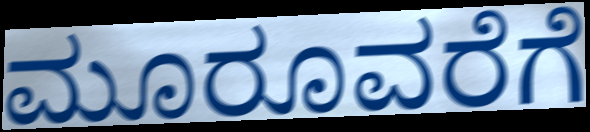
ಮೂರೂವರೆಗೆ